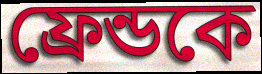
ফ্রেন্ডকে